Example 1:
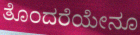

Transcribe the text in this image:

ತೊಂದರೆಯೇನೂ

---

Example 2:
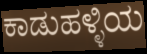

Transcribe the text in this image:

ಕಾಡುಹಳ್ಳಿಯ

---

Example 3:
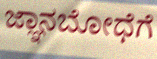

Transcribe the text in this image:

ಜ್ಞಾನಬೋಧೆಗೆ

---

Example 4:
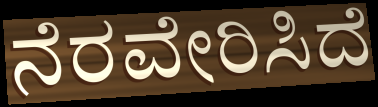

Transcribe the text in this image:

ನೆರವೇರಿಸಿದೆ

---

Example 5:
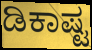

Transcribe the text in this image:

ಡಿಕಾಷ್ಟ